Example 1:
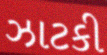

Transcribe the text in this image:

ઝાટકી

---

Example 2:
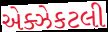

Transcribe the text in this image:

એક્ઝેકટલી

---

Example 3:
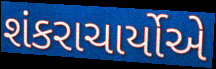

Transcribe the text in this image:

શંકરાચાર્યોએ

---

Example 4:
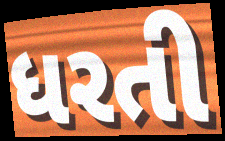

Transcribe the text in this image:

ધરતી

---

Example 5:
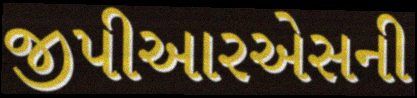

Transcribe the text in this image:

જીપીઆરએસની